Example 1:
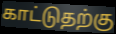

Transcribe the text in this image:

காட்டுதற்கு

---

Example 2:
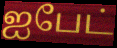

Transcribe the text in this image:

ஐபேட்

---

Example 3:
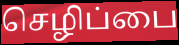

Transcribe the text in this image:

செழிப்பை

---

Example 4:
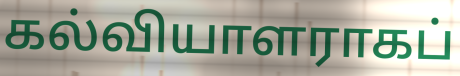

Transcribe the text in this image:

கல்வியாளராகப்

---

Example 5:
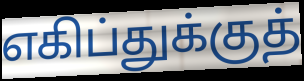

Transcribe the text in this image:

எகிப்துக்குத்